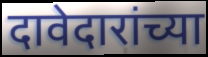
दावेदारांच्या